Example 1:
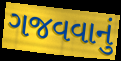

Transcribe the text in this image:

ગજવવાનું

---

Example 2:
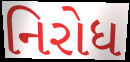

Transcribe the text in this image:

નિરોધ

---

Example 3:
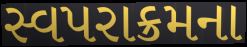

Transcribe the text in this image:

સ્વપરાક્રમના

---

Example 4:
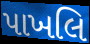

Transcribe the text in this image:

પાખલિ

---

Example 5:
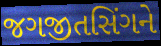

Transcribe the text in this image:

જગજીતસિંગને